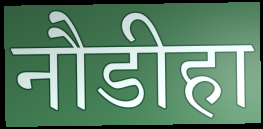
नौडीहा